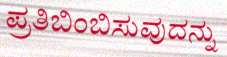
ಪ್ರತಿಬಿಂಬಿಸುವುದನ್ನು